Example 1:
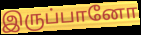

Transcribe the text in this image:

இருப்பானோ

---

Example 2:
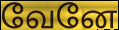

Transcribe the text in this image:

வேனே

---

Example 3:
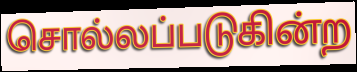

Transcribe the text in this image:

சொல்லப்படுகின்ற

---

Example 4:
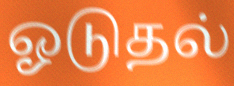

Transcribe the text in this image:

ஓடுதல்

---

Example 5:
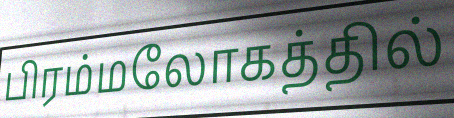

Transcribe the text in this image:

பிரம்மலோகத்தில்